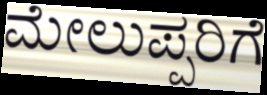
ಮೇಲುಪ್ಪರಿಗೆ